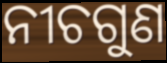
ନୀଚଗୁଣ